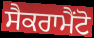
ਸੈਕਰਾਮੈਂਟੋ